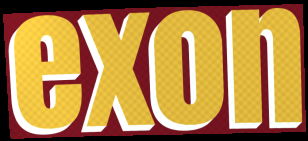
exon